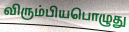
விரும்பியபொழுது